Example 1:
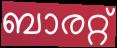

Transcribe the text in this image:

ബാരറ്റ്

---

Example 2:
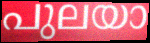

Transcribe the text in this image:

പുലയാ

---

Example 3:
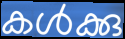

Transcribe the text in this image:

കൾക്കു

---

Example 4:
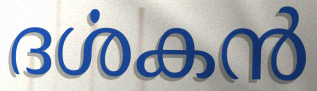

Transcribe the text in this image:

ദൎശകൻ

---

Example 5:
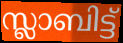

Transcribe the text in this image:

സ്ലാബിട്ട്